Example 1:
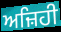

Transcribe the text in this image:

ਅਜ਼ਿਹੀ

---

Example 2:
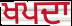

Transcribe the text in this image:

ਖਪਦਾ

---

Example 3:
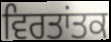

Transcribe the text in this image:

ਵਿਰਤਾਂਤਕ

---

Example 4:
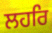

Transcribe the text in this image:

ਲਹਰਿ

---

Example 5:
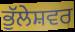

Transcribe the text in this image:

ਭੁੱਲੇਸ਼ਵਰ